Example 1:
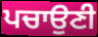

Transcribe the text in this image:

ਪਚਾਉਣੀ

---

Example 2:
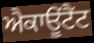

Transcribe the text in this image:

ਐਕਾਊਂਟੈਂਟ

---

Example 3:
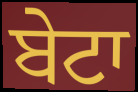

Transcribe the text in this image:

ਬੇਟਾ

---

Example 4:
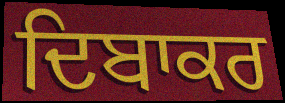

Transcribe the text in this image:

ਦਿਬਾਕਰ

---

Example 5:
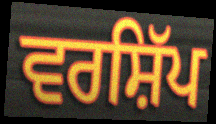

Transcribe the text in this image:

ਵਰਸ਼ਿੱਪ